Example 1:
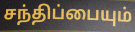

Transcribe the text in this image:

சந்திப்பையும்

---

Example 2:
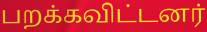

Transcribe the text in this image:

பறக்கவிட்டனர்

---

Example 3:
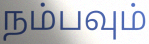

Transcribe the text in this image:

நம்பவும்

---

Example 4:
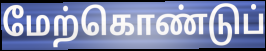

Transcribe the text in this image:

மேற்கொண்டுப்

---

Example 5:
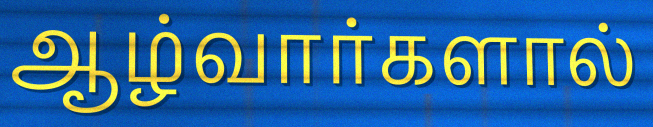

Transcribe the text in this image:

ஆழ்வார்களால்